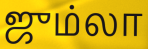
ஜும்லா